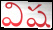
విష